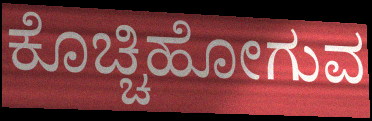
ಕೊಚ್ಚಿಹೋಗುವ